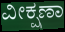
ವೀಕ್ಷಣಾ